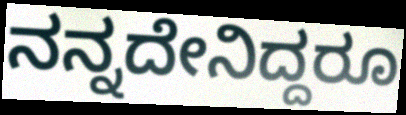
ನನ್ನದೇನಿದ್ದರೂ